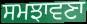
ਸਮਝਾਵਣਾ